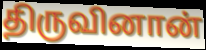
திருவினான்